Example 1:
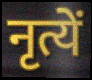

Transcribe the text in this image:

नृत्यें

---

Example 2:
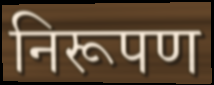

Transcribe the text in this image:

निरूपण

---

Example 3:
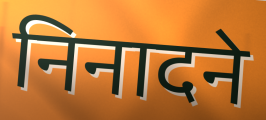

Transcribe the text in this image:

निनादने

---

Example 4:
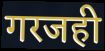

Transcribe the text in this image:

गरजही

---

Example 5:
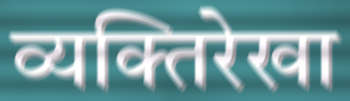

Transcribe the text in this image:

व्यक्तिरेखा